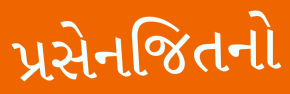
પ્રસેનજિતનો